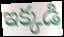
ఇక్కడి